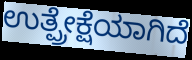
ಉತ್ಪ್ರೇಕ್ಷೆಯಾಗಿದೆ